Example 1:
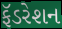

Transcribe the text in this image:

ફૅડરેશન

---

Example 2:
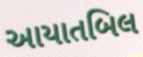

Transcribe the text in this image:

આયાતબિલ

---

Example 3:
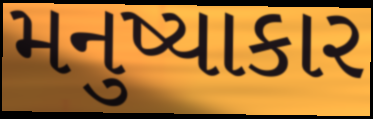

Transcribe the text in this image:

મનુષ્યાકાર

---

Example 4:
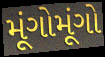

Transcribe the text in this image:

મૂંગોમૂંગો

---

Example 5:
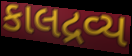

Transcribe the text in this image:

કાલદ્રવ્ય